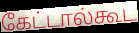
கேட்டால்கூட